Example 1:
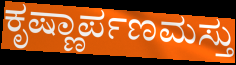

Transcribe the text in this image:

ಕೃಷ್ಣಾರ್ಪಣಮಸ್ತು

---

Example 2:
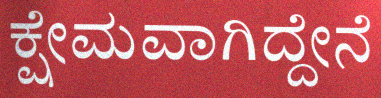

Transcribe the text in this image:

ಕ್ಷೇಮವಾಗಿದ್ದೇನೆ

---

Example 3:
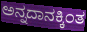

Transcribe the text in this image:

ಅನ್ನದಾನಕ್ಕಿಂತ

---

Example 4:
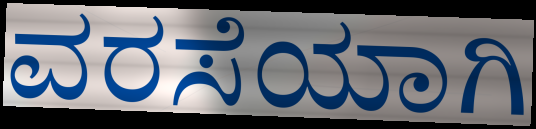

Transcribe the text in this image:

ವರಸೆಯಾಗಿ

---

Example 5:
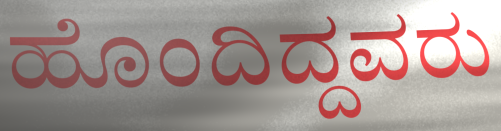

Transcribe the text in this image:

ಹೊಂದಿದ್ದವರು